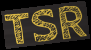
TSR